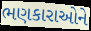
ભણકારાઓને